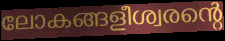
ലോകങ്ങളീശ്വരന്റെ